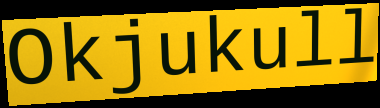
Okjukull